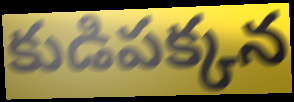
కుడిపక్కన